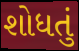
શોધતું